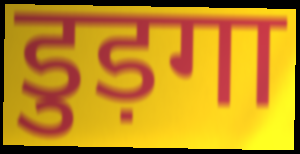
डुड़गा